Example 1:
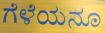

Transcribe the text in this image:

ಗೆಳೆಯನೂ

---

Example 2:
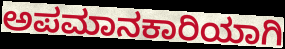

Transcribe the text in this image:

ಅಪಮಾನಕಾರಿಯಾಗಿ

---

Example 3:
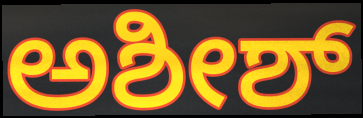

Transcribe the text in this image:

ಅಶೀಶ್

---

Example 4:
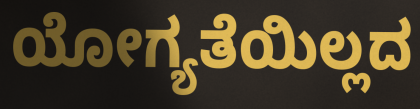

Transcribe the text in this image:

ಯೋಗ್ಯತೆಯಿಲ್ಲದ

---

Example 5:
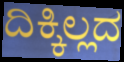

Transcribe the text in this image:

ದಿಕ್ಕಿಲ್ಲದ